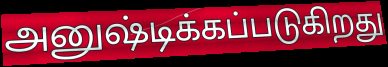
அனுஷ்டிக்கப்படுகிறது